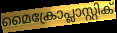
മൈക്രോപ്ലാസ്റ്റിക്